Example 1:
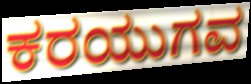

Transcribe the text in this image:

ಕರಯುಗವ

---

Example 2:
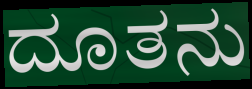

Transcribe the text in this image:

ದೂತನು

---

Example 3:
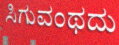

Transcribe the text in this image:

ಸಿಗುವಂಥದು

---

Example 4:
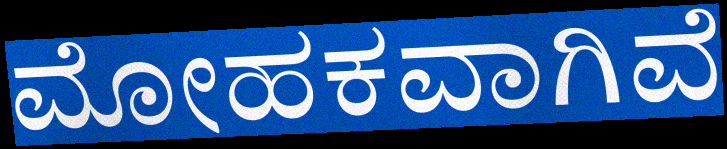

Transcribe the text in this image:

ಮೋಹಕವಾಗಿವೆ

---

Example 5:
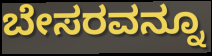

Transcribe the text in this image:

ಬೇಸರವನ್ನೂ